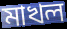
মাখল